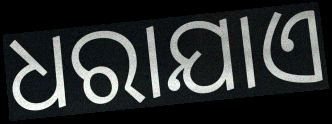
ଧରାଯାଏ